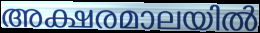
അക്ഷരമാലയിൽ